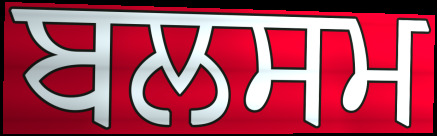
ਬਲਸਮ